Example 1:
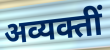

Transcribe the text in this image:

अव्यक्तीं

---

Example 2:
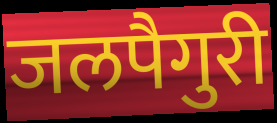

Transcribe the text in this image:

जलपैगुरी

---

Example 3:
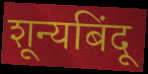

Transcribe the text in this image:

शून्यबिंदू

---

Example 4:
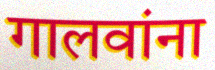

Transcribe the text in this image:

गालवांना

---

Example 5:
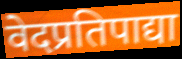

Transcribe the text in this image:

वेदप्रतिपाद्या